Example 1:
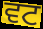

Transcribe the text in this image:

ਵਟ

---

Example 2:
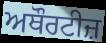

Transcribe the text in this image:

ਅਥੌਰਟੀਜ਼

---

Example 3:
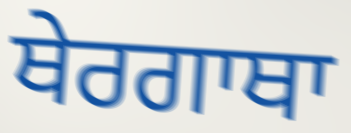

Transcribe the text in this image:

ਥੇਰਗਾਥਾ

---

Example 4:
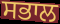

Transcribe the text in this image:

ਸਭਾਲ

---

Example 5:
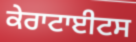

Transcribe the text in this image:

ਕੇਰਾਟਾਈਟਸ